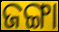
ଜଙ୍ଗା